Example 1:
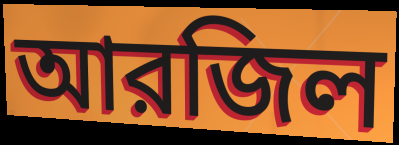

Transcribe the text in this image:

আরজিল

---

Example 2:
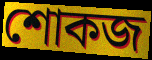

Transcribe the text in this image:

শোকজ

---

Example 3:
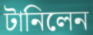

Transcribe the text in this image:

টানিলেন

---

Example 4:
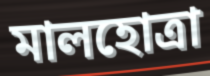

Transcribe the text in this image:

মালহোত্রা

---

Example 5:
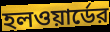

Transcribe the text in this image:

হলওয়ার্ডের